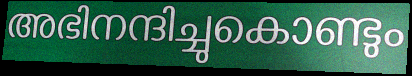
അഭിനന്ദിച്ചുകൊണ്ടും